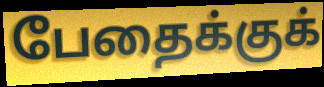
பேதைக்குக்